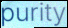
purity